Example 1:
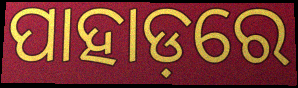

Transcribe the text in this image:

ପାହାଡ଼ରେ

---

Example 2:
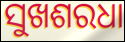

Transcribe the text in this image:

ସୁଖଶରଧା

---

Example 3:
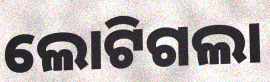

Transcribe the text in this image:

ଲୋଟିଗଲା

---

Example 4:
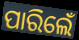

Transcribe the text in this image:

ପାରିଲେଁ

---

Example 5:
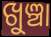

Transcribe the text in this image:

ଖୁଞ୍ଚା